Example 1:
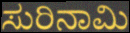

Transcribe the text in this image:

ಸುರಿನಾಮಿ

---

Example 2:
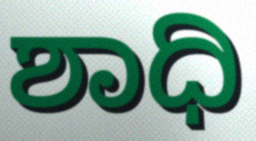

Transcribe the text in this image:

ಶಾಧಿ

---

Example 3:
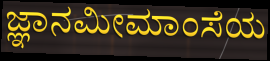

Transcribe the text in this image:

ಜ್ಞಾನಮೀಮಾಂಸೆಯ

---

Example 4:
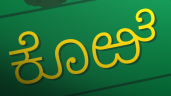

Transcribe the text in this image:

ಕೊಱೆ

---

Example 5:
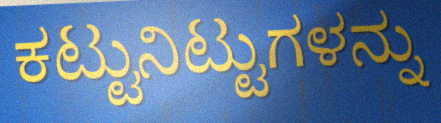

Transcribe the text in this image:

ಕಟ್ಟುನಿಟ್ಟುಗಳನ್ನು